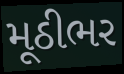
મૂઠીભર